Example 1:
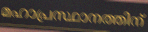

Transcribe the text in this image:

മഹാപ്രസ്ഥാനത്തിന്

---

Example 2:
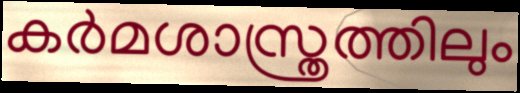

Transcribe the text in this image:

കർമശാസ്ത്രത്തിലും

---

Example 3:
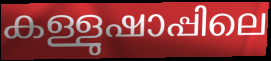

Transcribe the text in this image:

കള്ളുഷാപ്പിലെ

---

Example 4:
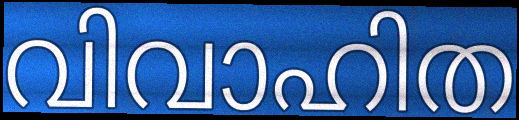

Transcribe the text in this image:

വിവാഹിത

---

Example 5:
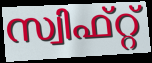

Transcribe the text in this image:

സ്വിഫ്റ്റ്